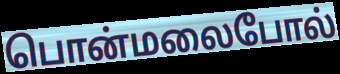
பொன்மலைபோல்